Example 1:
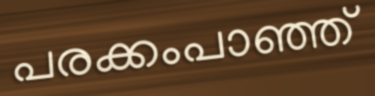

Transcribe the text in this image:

പരക്കംപാഞ്ഞ്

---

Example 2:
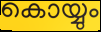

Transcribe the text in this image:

കൊയ്യും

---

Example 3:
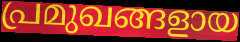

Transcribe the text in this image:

പ്രമുഖങ്ങളായ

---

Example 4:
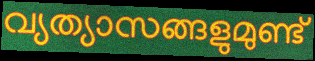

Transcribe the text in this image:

വ്യത്യാസങ്ങളുമുണ്ട്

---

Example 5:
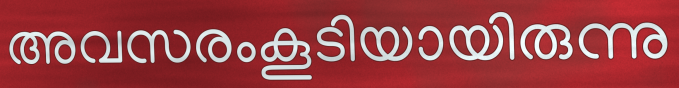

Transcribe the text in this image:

അവസരംകൂടിയായിരുന്നു